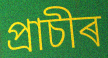
প্ৰাচীৰ